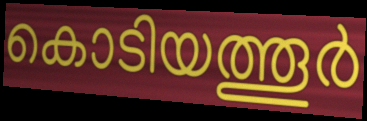
കൊടിയത്തൂർ